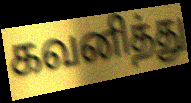
கவனித்து